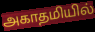
அகாதமியில்